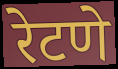
रेटणे